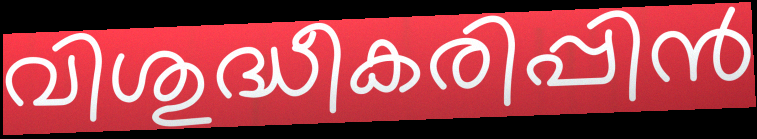
വിശുദ്ധീകരിപ്പിൻ